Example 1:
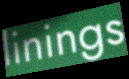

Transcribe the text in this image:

linings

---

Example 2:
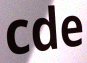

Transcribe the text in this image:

cde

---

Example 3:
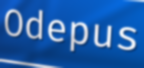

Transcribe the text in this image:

Odepus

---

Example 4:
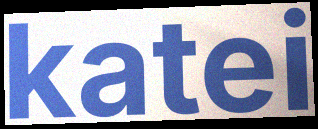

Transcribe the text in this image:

katei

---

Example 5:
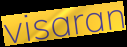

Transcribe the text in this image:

visaran